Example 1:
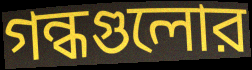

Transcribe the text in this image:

গন্ধগুলোর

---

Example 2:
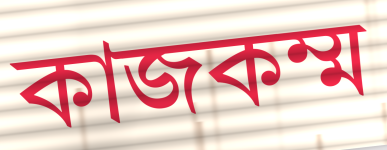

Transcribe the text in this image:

কাজকম্ম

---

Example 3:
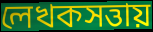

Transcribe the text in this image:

লেখকসত্তায়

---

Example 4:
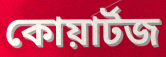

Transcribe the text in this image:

কোয়ার্টজ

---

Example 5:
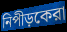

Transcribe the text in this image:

নিপীড়কেরা